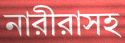
নারীরাসহ